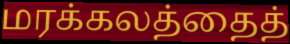
மரக்கலத்தைத்